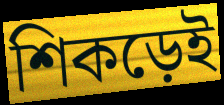
শিকড়েই